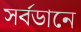
সর্বডানে